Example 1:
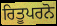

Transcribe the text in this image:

ਰਿਤੂਪਰਨੋ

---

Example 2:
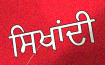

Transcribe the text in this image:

ਸਿਖਾਂਦੀ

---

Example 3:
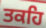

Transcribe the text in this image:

ਤਕਹਿ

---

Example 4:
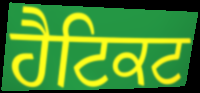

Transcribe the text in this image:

ਹੈਟਿਕਟ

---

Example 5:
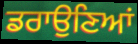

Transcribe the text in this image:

ਡਰਾਉਣਿਆਂ